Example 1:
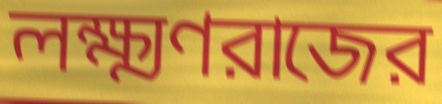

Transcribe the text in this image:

লক্ষ্মণরাজের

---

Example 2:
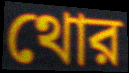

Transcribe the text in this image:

থোর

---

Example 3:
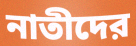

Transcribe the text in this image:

নাতীদের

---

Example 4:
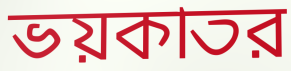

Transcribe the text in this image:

ভয়কাতর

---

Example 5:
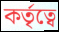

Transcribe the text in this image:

কর্তৃত্বে